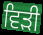
ਵਿੜੀ